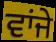
ਵਾਂਜੇ